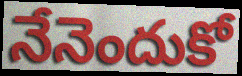
నేనెందుకో